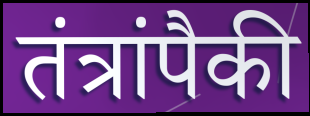
तंत्रांपैकी